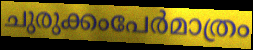
ചുരുക്കംപേർമാത്രം